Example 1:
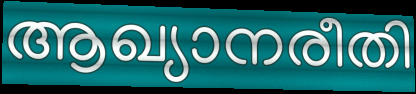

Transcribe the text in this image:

ആഖ്യാനരീതി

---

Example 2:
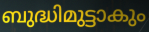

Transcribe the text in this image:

ബുദ്ധിമുട്ടാകും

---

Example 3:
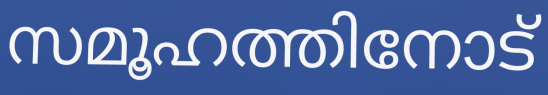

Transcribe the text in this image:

സമൂഹത്തിനോട്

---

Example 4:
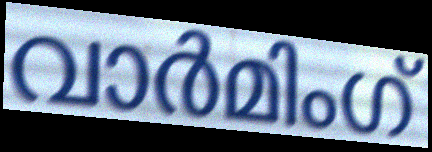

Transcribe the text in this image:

വാർമിംഗ്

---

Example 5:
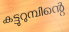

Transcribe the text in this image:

കട്ടുറുമ്പിന്റെ